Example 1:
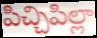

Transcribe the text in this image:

పిచ్చిపిల్లా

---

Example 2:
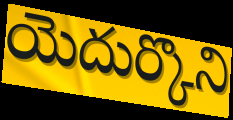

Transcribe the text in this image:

యెదుర్కొని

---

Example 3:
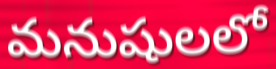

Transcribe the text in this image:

మనుషులలో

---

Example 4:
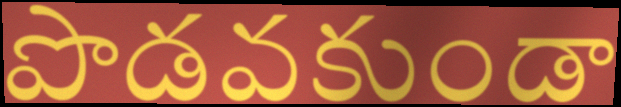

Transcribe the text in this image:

పొడవకుండా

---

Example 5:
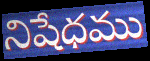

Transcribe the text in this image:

నిషేధము